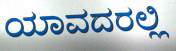
ಯಾವದರಲ್ಲಿ